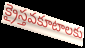
క్రైస్తవకూటాలకు